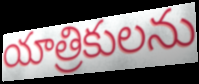
యాత్రికులను